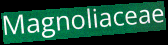
Magnoliaceae